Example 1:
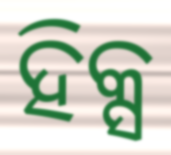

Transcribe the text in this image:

ହିକ୍ସ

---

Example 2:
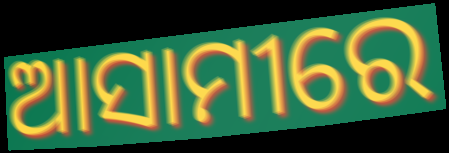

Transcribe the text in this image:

ଆସାମୀରେ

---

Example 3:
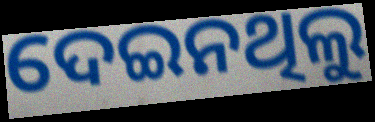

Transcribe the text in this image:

ଦେଇନଥିଲୁ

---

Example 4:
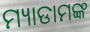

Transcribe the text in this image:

ମ୍ୟାଡାମଙ୍କ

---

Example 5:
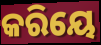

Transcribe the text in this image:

କରିୟେ